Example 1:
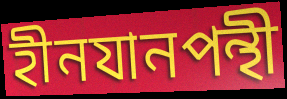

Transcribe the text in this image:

হীনযানপন্থী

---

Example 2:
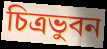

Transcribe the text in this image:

চিত্রভুবন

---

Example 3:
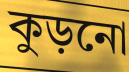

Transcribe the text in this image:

কুড়নো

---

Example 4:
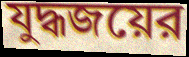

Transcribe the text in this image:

যুদ্ধজয়ের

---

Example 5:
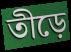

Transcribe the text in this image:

তীড়ে